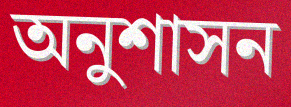
অনুশাসন